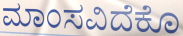
ಮಾಂಸವಿದೆಕೊ